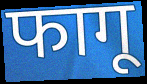
फागू